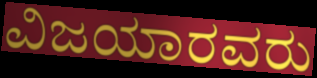
ವಿಜಯಾರವರು